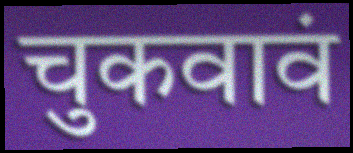
चुकवावं